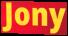
Jony